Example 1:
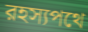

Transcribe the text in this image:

রহস্যপথে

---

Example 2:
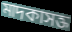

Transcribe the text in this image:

মাদকাসক্ত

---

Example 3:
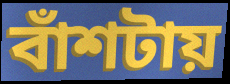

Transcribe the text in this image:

বাঁশটায়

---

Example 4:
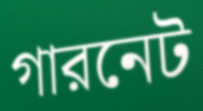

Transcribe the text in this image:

গারনেট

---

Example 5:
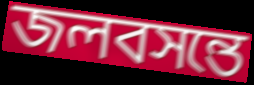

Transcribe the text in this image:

জলবসন্তে